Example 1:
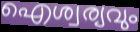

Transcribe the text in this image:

ഐശ്വര്യവും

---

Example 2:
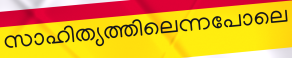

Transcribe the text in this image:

സാഹിത്യത്തിലെന്നപോലെ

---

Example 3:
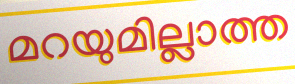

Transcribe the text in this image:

മറയുമില്ലാത്ത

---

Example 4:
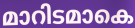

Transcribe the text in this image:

മാറിടമാകെ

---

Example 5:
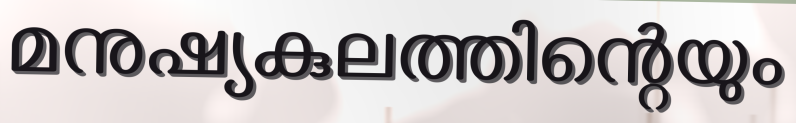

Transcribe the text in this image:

മനുഷ്യകുലത്തിന്റെയും